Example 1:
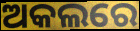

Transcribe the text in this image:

ଅକଲରେ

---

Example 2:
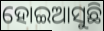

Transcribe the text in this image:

ହୋଇଆସୁଛି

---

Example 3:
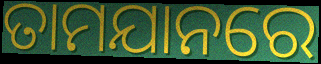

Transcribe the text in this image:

ତାମଯାନରେ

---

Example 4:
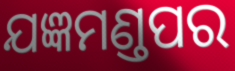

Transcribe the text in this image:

ଯଜ୍ଞମଣ୍ଡପର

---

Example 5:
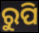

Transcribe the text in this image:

ରୁପି